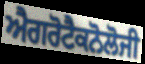
ਐਗਰੋਟੈਕਨੋਲੋਜੀ